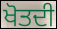
ਖੋਤਦੀ